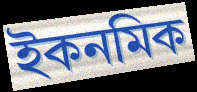
ইকনমিক